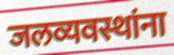
जलव्यवस्थांना